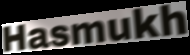
Hasmukh